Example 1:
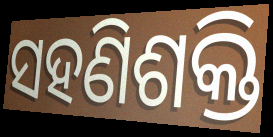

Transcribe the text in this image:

ସହଣିଶକ୍ତି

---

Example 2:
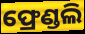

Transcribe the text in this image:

ଫ୍ରେଣ୍ଡଲି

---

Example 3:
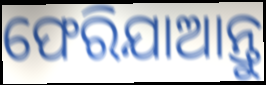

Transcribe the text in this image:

ଫେରିଯାଆନ୍ତୁ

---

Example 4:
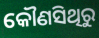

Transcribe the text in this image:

କୌଣସିଥିରୁ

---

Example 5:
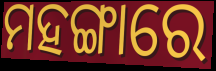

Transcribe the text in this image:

ମହଙ୍ଗାରେ